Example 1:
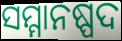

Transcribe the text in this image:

ସମ୍ମାନଷ୍ପଦ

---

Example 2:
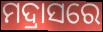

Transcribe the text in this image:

ମଦ୍ରାସରେ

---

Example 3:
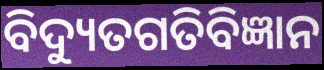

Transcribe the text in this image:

ବିଦ୍ୟୁତଗତିବିଜ୍ଞାନ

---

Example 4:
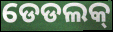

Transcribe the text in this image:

ଡେଡଲକ୍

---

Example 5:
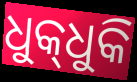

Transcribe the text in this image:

ଧୁକ୍‌ଧୁକି